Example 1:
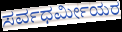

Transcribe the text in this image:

ಸರ್ವಧರ್ಮೀಯರ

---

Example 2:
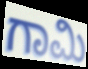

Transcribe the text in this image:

ಗಾಮಿ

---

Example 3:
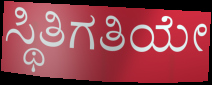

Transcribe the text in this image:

ಸ್ಥಿತಿಗತಿಯೇ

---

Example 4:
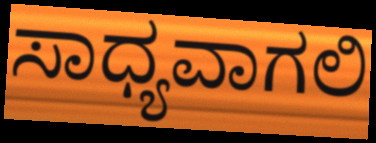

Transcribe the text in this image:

ಸಾಧ್ಯವಾಗಲಿ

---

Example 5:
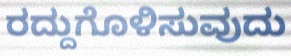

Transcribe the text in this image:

ರದ್ದುಗೊಳಿಸುವುದು